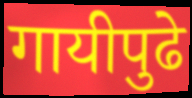
गायीपुढे